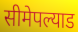
सीमेपल्याड